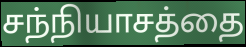
சந்நியாசத்தை